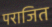
पराजित